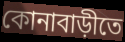
কোনাবাড়ীতে